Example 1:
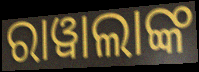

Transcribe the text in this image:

ରାୱାଲାଙ୍କ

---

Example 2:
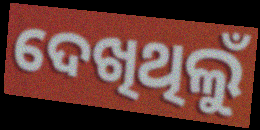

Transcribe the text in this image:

ଦେଖିଥିଲୁଁ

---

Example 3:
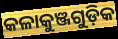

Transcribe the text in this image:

କଳାକୁଞ୍ଜଗୁଡ଼ିକ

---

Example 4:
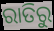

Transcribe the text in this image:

ରାତିରୁ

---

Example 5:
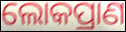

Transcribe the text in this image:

ଲୋକପ୍ରାଣ